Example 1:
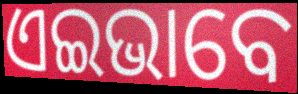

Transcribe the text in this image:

ଏଇଭାବେ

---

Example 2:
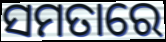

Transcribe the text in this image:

ସମତାରେ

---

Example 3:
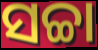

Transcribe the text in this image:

ସଚ୍ଚା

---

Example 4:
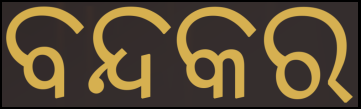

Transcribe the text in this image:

ବନ୍ଦକର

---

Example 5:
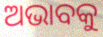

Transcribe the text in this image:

ଅଭାବକୁ